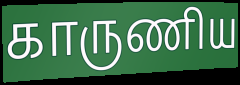
காருணிய